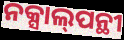
ନକ୍ସାଲ୍‌ପନ୍ଥୀ